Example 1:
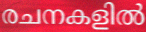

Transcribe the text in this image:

രചനകളിൽ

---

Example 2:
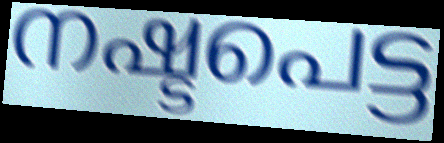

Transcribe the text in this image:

നഷ്ടപെട്ട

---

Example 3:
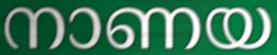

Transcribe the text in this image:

നാണയ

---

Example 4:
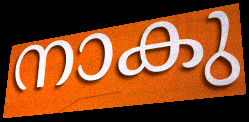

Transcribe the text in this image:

നാകു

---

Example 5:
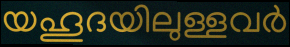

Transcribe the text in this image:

യഹൂദയിലുള്ളവർ